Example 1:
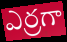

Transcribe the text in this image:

ఎర్రగా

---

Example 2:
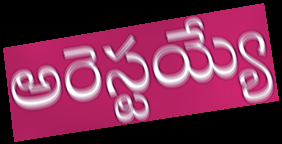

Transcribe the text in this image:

అరెస్టయ్యే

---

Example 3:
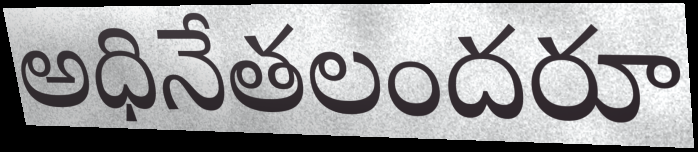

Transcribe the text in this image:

అధినేతలందరూ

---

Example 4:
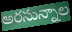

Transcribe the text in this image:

అరసున్నాల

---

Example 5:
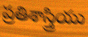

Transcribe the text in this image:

ప్రతిశాస్త్రియు